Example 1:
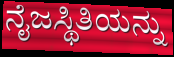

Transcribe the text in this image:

ನೈಜಸ್ಥಿತಿಯನ್ನು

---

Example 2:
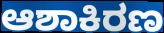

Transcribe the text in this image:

ಆಶಾಕಿರಣ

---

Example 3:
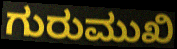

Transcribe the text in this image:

ಗುರುಮುಖಿ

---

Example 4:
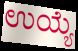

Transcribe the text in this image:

ಉಯ್ಯೆ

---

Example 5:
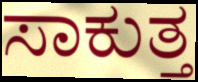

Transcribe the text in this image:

ಸಾಕುತ್ತ